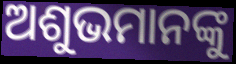
ଅଶୁଭମାନଙ୍କୁ